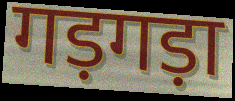
गड़गड़ा